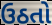
ઉઠતો